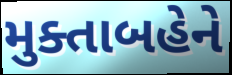
મુક્તાબહેને